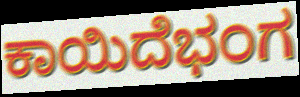
ಕಾಯಿದೆಭಂಗ